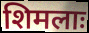
शिमलाः